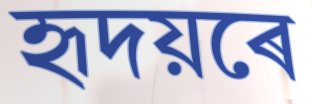
হৃদয়ৰে